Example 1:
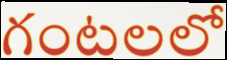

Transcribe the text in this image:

గంటలలో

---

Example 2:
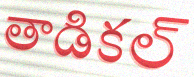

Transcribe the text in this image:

తాడికల్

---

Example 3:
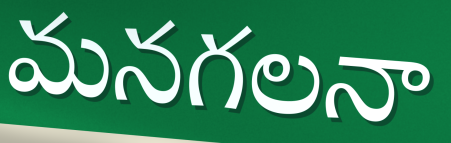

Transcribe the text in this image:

మనగలనా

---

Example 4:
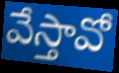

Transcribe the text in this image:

వేస్తావో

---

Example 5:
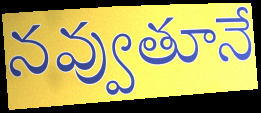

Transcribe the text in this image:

నవ్వుతూనే